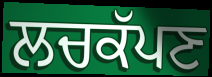
ਲਚਕੱਪਣ